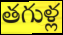
తగుళ్ల